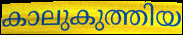
കാലുകുത്തിയ